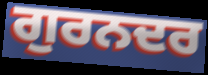
ਗੁਰਨਦਰ